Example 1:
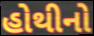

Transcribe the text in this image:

હોથીનો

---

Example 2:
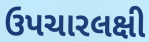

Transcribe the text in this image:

ઉપચારલક્ષી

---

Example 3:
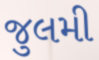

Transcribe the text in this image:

જુલમી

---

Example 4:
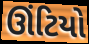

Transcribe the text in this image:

ઊંટિયો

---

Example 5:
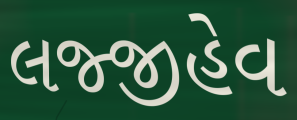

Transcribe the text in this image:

લજ્જીહેવ